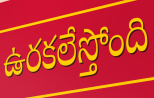
ఉరకలేస్తోంది